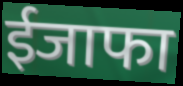
ईजाफा